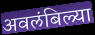
अवलंबिल्या